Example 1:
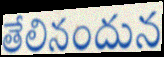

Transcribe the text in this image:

తేలినందున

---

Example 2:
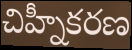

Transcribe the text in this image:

చిహ్నీకరణ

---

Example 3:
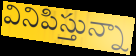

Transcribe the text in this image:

వినిపిస్తున్నా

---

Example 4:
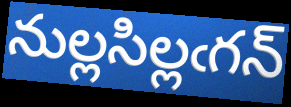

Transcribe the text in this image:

నుల్లసిల్లఁగన్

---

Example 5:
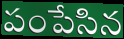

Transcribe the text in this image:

పంపేసిన